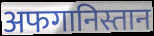
अफगानिस्तान